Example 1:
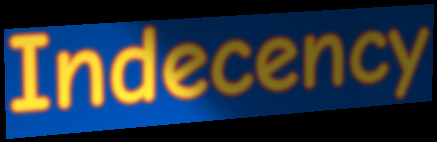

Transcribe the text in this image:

Indecency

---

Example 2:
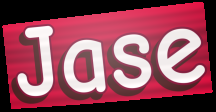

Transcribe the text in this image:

Jase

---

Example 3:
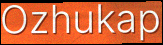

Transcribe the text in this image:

Ozhukap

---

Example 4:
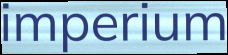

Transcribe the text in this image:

imperium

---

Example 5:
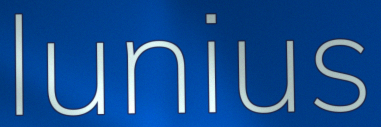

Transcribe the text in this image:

Iunius